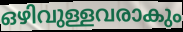
ഒഴിവുള്ളവരാകും